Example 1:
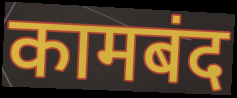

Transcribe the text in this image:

कामबंद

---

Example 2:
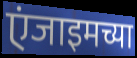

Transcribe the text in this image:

एंजाइमच्या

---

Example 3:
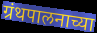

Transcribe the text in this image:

ग्रंथपालनाच्या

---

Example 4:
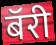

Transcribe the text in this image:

बॅरी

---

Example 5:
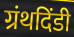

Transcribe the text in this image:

ग्रंथदिंडी